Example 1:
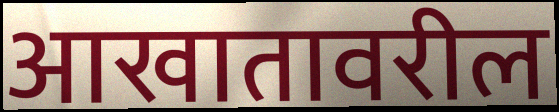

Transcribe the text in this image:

आखातावरील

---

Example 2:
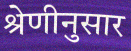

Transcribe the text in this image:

श्रेणीनुसार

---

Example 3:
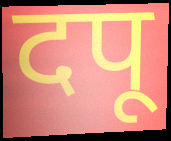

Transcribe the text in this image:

दपू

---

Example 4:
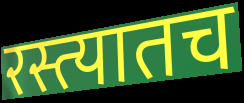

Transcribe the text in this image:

रस्त्यातच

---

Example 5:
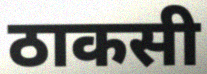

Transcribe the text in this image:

ठाकसी